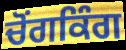
ਚੋਂਗਕਿੰਗ